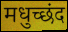
मधुच्छंद